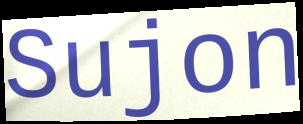
Sujon